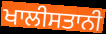
ਖਾਲੀਸਤਾਨੀ